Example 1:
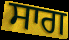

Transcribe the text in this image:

ਸਾਗ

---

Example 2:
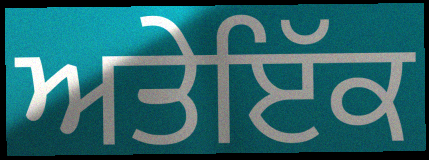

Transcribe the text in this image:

ਅਤੇਇੱਕ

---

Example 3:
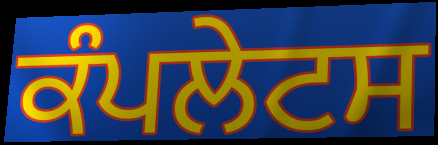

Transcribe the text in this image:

ਕੰਪਲੇਟਸ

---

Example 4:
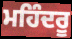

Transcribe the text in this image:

ਮਹਿੰਦਰੂ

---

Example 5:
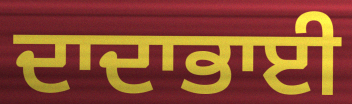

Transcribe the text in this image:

ਦਾਦਾਭਾਈ